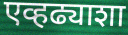
एव्हढ्याशा